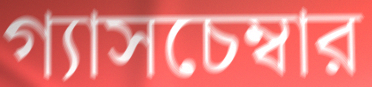
গ্যাসচেম্বার